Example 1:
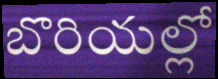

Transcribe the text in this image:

బొరియల్లో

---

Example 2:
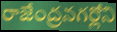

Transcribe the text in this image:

రాజేంద్రనగర్లోని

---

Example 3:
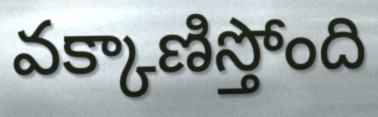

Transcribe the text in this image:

వక్కాణిస్తోంది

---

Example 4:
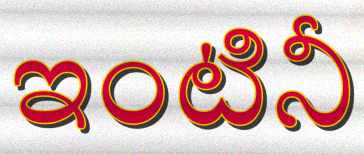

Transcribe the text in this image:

ఇంటినీ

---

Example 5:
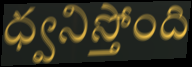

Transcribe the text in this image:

ధ్వనిస్తోంది